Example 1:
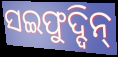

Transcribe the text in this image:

ସଇଫୁଦ୍ଦିନ୍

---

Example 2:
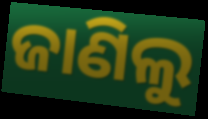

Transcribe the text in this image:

ଜାଣିଲୁ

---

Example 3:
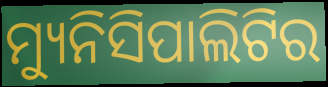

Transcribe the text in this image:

ମ୍ୟୁନିସିପାଲିଟିର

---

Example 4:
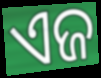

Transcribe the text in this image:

ଏଜ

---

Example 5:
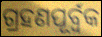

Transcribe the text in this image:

ଗ୍ରହଣପୂର୍ବ୍ବକ